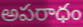
అపరాధం